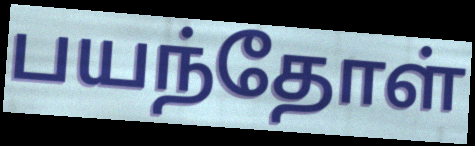
பயந்தோள்